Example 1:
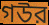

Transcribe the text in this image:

গউর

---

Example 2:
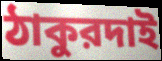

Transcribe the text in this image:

ঠাকুরদাই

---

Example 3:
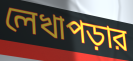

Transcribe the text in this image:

লেখাপড়ার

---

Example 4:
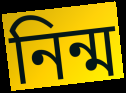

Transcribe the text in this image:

নিন্ম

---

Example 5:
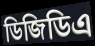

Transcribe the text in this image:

ডিজিডিএ